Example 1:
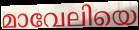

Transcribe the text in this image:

മാവേലിയെ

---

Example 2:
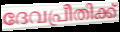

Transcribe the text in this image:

ദേവപ്രീതിക്ക്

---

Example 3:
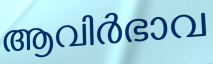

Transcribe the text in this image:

ആവിർഭാവ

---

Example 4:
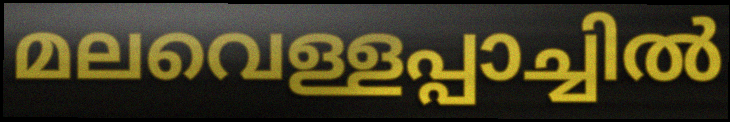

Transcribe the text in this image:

മലവെള്ളപ്പാച്ചിൽ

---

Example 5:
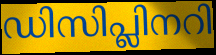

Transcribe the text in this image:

ഡിസിപ്ലിനറി